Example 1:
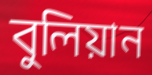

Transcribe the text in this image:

বুলিয়ান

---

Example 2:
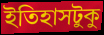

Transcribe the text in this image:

ইতিহাসটুকু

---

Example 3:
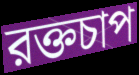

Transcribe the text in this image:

রক্তচাপ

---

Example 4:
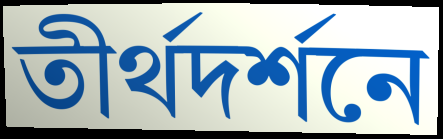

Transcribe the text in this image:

তীর্থদর্শনে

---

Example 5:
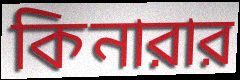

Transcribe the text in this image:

কিনারার